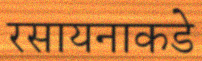
रसायनाकडे